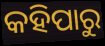
କହିପାରୁ